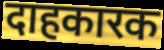
दाहकारक